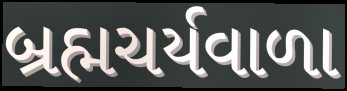
બ્રહ્મચર્યવાળા